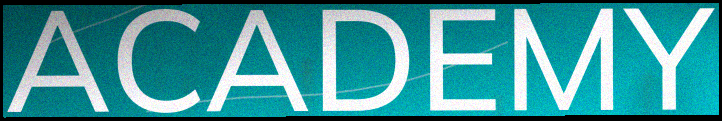
ACADEMY